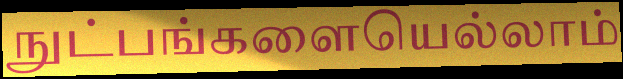
நுட்பங்களையெல்லாம்